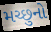
મચ્છુનો